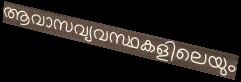
ആവാസവ്യവസ്ഥകളിലെയും